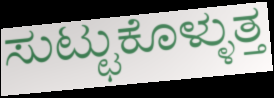
ಸುಟ್ಟುಕೊಳ್ಳುತ್ತ